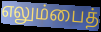
எலும்பைத்